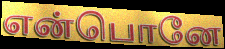
என்பொனே